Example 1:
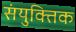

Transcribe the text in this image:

संयुक्तिक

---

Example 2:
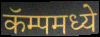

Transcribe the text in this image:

कॅम्पमध्ये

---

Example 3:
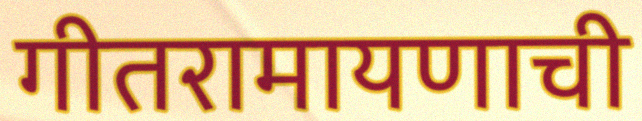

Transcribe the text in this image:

गीतरामायणाची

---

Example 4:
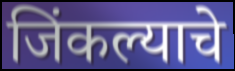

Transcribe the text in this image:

जिंकल्याचे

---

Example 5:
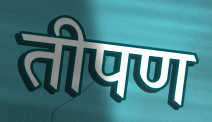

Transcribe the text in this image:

तीपण